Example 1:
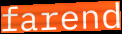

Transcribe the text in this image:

farend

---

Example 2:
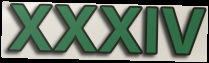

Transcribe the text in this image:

XXXIV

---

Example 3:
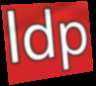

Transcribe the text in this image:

ldp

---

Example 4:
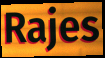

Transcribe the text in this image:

Rajes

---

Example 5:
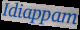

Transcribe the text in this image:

Idiappam